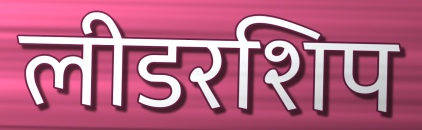
लीडरशिप